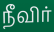
நீவிர்